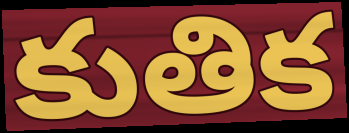
కుతిక